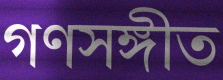
গণসঙ্গীত